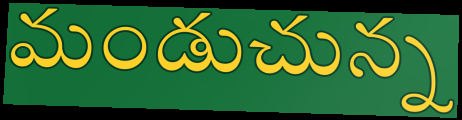
మండుచున్న